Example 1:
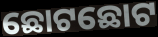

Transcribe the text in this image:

ଛୋଟଛୋଟ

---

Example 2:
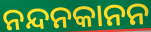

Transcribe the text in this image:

ନନ୍ଦନକାନନ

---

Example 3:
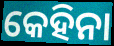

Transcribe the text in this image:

କେହିନା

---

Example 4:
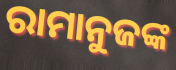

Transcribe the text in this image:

ରାମାନୁଜଙ୍କ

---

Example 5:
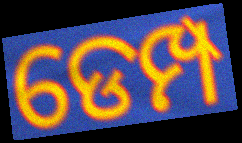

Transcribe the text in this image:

ଡେମ୍ପ